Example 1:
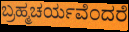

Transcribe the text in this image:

ಬ್ರಹ್ಮಚರ್ಯವೆಂದರೆ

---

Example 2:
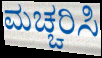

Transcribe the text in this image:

ಮಚ್ಚರಿಸಿ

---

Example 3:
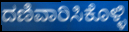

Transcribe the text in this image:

ದಣಿವಾರಿಸಿಕೊಳ್ಳಿ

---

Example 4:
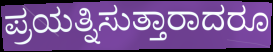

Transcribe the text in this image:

ಪ್ರಯತ್ನಿಸುತ್ತಾರಾದರೂ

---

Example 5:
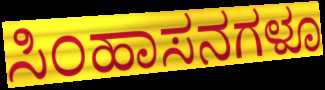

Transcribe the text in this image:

ಸಿಂಹಾಸನಗಳೂ